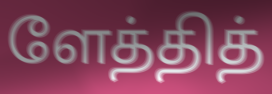
ளேத்தித்